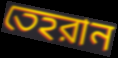
তেহরান